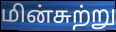
மின்சுற்று